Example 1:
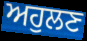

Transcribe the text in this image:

ਅਹੁਲਣ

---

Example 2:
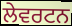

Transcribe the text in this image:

ਲੇਵਰਟਨ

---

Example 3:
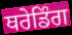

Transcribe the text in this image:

ਥਰੇਡਿੰਗ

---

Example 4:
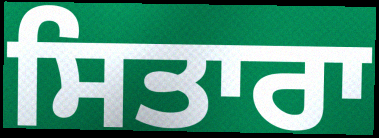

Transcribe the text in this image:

ਸਿਤਾਰਾ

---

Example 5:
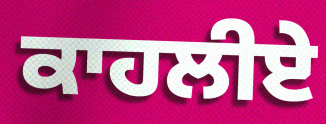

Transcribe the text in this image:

ਕਾਹਲੀਏ